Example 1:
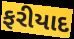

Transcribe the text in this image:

ફરીયાદ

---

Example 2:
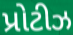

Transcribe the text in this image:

પ્રોટીઝ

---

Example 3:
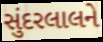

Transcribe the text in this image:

સુંદરલાલને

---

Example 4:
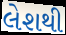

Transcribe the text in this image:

લેશથી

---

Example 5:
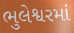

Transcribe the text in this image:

ભુલેશ્વરમાં